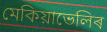
মেকিয়াভেলিৰ